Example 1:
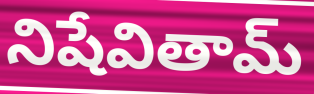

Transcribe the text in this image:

నిషేవితామ్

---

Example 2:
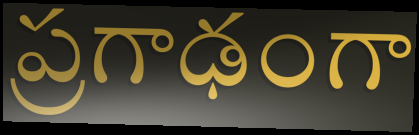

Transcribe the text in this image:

ప్రగాఢంగా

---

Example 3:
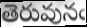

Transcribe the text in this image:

తెరువునఁ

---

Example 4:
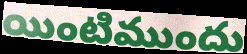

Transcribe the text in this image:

యింటిముందు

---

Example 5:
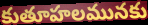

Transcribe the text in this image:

కుతూహలమునకు